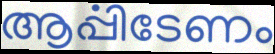
ആൎപ്പിടേണം